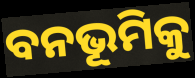
ବନଭୂମିକୁ